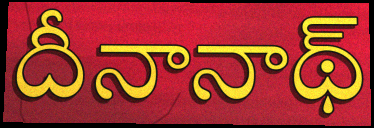
దీనానాథ్